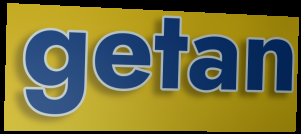
getan